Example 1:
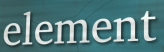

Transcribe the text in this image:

element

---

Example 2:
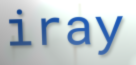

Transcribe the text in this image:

iray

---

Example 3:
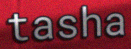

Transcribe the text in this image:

tasha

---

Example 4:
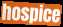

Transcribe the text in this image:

hospice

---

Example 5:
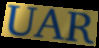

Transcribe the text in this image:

UAR